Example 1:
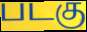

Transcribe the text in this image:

படகு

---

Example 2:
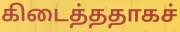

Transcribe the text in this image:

கிடைத்ததாகச்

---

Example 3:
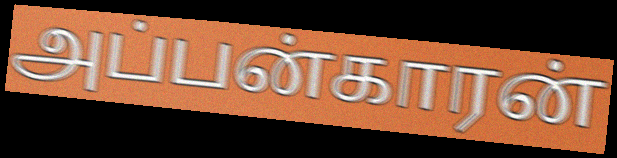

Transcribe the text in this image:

அப்பன்காரன்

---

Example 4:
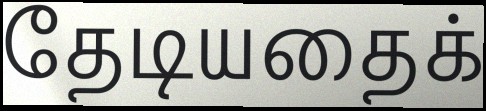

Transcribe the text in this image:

தேடியதைக்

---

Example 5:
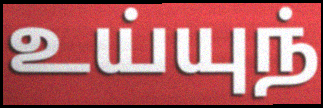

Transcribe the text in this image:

உய்யுந்